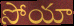
సోయా